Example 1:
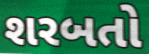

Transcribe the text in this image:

શરબતો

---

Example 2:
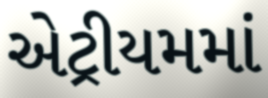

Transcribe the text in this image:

એટ્રીયમમાં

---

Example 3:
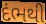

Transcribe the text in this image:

દંભથી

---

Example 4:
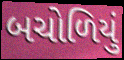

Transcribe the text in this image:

બચોળિયું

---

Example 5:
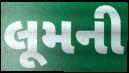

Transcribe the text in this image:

લૂમની